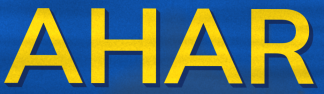
AHAR